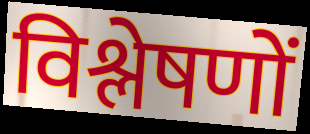
विश्लेषणों